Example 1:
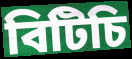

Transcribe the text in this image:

বিটিচি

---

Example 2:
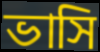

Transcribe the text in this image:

ভাসি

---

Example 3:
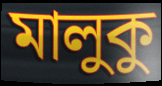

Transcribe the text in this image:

মালুকু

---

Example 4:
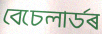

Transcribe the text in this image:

বেচেলাৰ্ডৰ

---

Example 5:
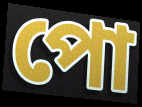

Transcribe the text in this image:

পো